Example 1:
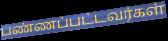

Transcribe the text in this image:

பண்ணப்பட்டவர்கள்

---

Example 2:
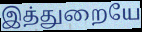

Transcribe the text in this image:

இத்துறையே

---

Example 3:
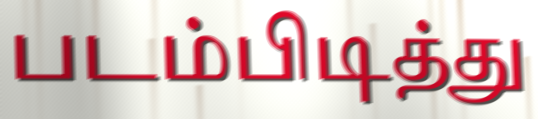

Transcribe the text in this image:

படம்பிடித்து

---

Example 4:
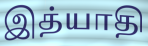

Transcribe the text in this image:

இத்யாதி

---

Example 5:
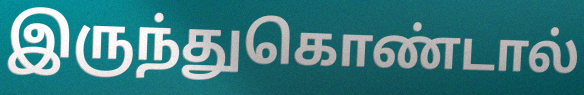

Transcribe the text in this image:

இருந்துகொண்டால்